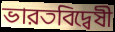
ভারতবিদ্বেষী